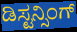
ಡಿಸ್ಟನ್ಸಿಂಗ್